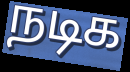
நடிக